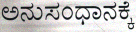
ಅನುಸಂಧಾನಕ್ಕೆ